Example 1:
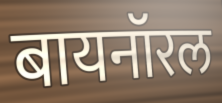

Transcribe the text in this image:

बायनॉरल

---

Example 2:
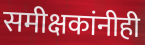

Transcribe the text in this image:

समीक्षकांनीही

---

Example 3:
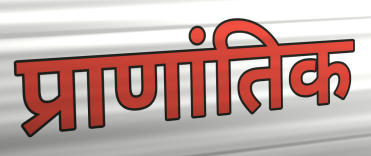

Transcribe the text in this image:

प्राणांतिक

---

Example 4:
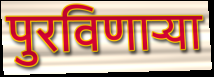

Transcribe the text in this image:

पुरविणार्‍या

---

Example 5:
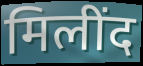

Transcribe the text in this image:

मिलींद